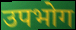
उपभोग